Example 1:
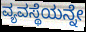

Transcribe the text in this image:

ವ್ಯವಸ್ಥೆಯನ್ನೇ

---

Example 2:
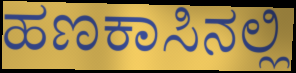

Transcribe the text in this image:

ಹಣಕಾಸಿನಲ್ಲಿ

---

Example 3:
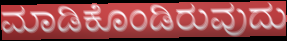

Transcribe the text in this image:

ಮಾಡಿಕೊಂಡಿರುವುದು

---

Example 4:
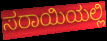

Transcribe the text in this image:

ಸರಾಯಿಯಲ್ಲಿ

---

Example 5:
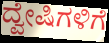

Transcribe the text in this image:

ದ್ವೇಷಿಗಳಿಗೆ